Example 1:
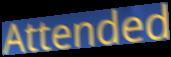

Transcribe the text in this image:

Attended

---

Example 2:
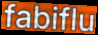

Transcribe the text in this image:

fabiflu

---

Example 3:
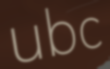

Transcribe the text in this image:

ubc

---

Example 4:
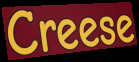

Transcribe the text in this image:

Creese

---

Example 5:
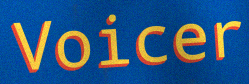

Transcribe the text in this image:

Voicer